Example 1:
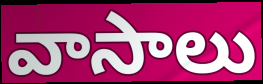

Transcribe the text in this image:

వాసాలు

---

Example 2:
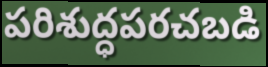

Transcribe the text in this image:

పరిశుద్ధపరచబడి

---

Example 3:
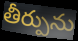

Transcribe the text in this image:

తీర్పును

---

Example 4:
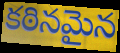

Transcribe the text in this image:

కఠినమైన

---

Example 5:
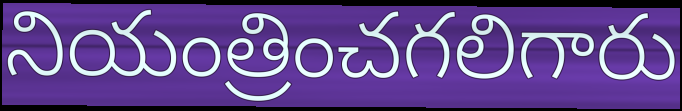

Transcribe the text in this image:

నియంత్రించగలిగారు